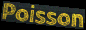
Poisson